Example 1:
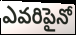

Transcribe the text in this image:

ఎవరిపైనో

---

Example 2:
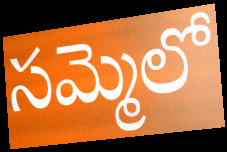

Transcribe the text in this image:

సమ్మెలో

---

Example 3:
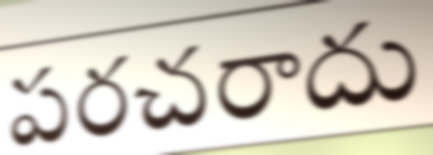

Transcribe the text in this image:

పరచరాదు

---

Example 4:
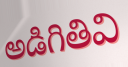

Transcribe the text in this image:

అడిగితివి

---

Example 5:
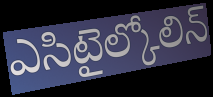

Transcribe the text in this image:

ఎసిటైల్కోలిన్